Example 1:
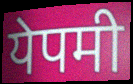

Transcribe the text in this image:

येपमी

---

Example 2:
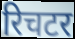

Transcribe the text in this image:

रिचटर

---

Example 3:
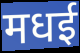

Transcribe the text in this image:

मधई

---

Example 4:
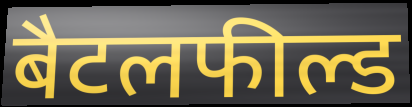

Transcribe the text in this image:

बैटलफील्ड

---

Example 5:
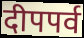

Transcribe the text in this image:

दीपपर्व